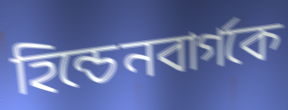
হিন্ডেনবার্গকে